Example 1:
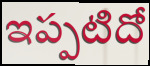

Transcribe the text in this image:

ఇప్పటిదో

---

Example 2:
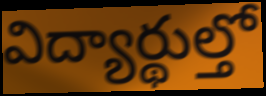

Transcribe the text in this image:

విద్యార్థుల్తో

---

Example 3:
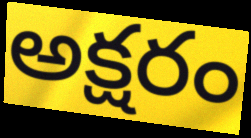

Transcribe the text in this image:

అక్షరం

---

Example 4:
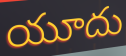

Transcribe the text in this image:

యూదు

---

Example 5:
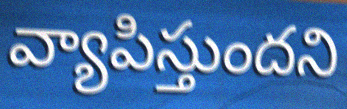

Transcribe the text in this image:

వ్యాపిస్తుందని